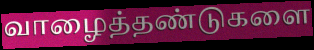
வாழைத்தண்டுகளை